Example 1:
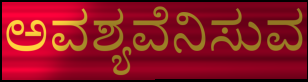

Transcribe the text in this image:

ಅವಶ್ಯವೆನಿಸುವ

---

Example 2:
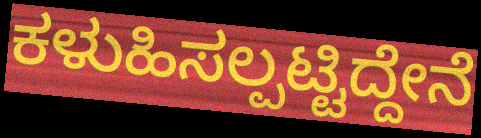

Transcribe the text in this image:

ಕಳುಹಿಸಲ್ಪಟ್ಟಿದ್ದೇನೆ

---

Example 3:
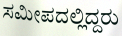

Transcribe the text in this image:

ಸಮೀಪದಲ್ಲಿದ್ದರು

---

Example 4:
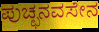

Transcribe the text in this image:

ಪುಚ್ಛನವಸೇನ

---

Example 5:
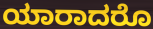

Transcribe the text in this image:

ಯಾರಾದರೊ